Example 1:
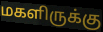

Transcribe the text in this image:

மகளிருக்கு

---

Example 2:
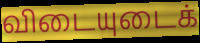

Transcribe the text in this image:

விடையுடைக்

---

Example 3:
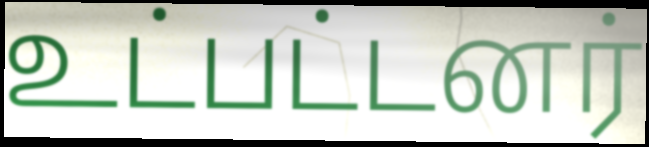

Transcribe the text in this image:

உட்பட்டனர்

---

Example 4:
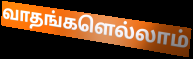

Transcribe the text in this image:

வாதங்களெல்லாம்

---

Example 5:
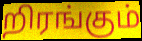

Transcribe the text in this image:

றிரங்கும்